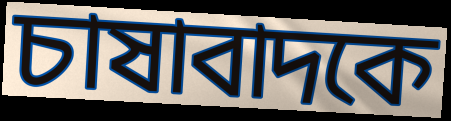
চাষাবাদকে